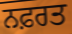
ਨਫ਼ਰਤ